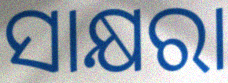
ସାକ୍ଷରା